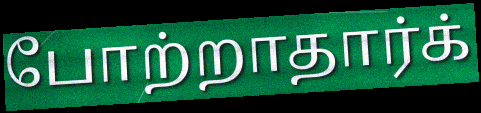
போற்றாதார்க்